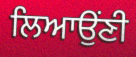
ਲਿਆਉਂਣੀ